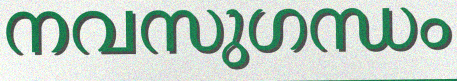
നവസുഗന്ധം